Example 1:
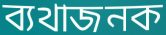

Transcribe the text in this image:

ব্যথাজনক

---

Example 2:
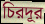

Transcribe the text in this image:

চিরদূর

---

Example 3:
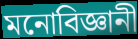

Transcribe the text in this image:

মনোবিজ্ঞানী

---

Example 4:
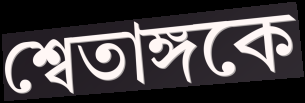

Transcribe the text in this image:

শ্বেতাঙ্গকে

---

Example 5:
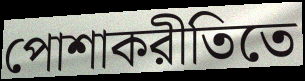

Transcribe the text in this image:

পোশাকরীতিতে